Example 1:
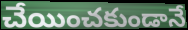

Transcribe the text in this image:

చేయించకుండానే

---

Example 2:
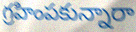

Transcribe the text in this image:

గ్రహింపకున్నారా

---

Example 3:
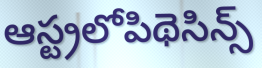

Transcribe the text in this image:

ఆస్ట్రలోపిథెసిన్స్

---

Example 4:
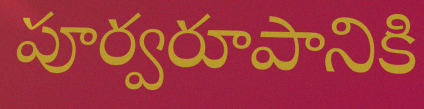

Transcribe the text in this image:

పూర్వరూపానికి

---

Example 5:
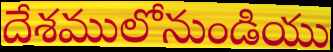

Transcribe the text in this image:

దేశములోనుండియు